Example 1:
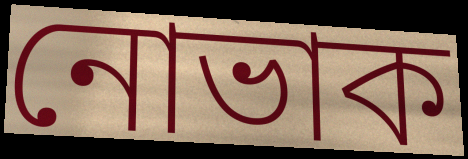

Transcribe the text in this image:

নোভাক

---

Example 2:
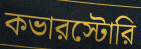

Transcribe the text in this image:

কভারস্টোরি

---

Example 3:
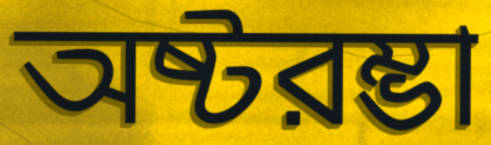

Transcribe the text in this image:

অষ্টরম্ভা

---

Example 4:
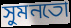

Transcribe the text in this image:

সুমনতো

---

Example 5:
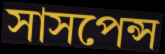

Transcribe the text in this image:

সাসপেন্স